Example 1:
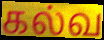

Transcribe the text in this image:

கல்வ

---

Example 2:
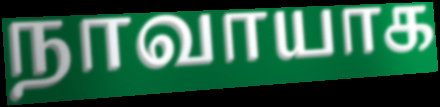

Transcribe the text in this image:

நாவாயாக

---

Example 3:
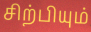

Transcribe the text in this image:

சிற்பியும்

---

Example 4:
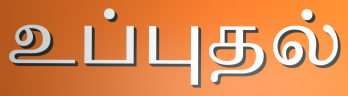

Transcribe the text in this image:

உப்புதல்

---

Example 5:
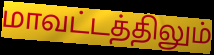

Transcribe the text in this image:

மாவட்டத்திலும்